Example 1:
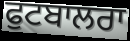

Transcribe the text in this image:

ਫੁਟਬਾਲਰਾ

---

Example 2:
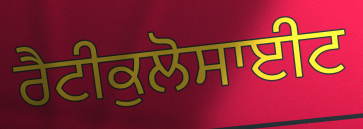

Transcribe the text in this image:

ਰੈਟੀਕੁਲੋਸਾਈਟ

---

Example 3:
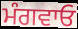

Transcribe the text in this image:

ਮੰਗਵਾਓ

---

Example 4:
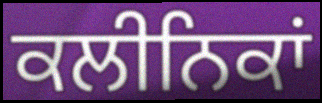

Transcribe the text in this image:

ਕਲੀਨਿਕਾਂ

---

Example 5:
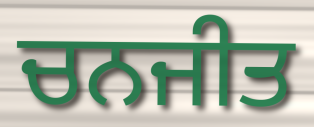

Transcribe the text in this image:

ਚਨਜੀਤ